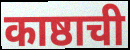
काष्ठाची